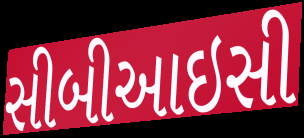
સીબીઆઇસી